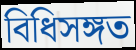
বিধিসঙ্গত